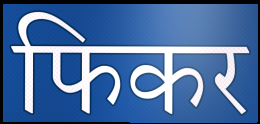
फिकर